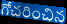
గోచరించిన